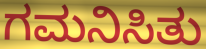
ಗಮನಿಸಿತು